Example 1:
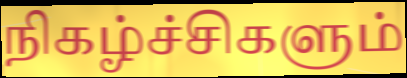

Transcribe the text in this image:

நிகழ்ச்சிகளும்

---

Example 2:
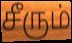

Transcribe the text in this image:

சீரும்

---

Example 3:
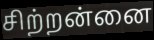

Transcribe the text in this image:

சிற்றன்னை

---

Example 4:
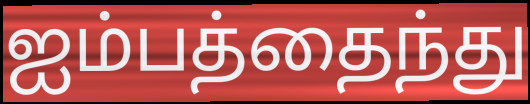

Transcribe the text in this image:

ஐம்பத்தைந்து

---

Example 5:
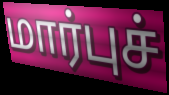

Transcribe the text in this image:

மார்புச்